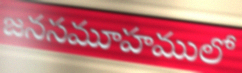
జనసమూహములో